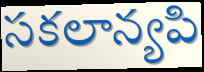
సకలాన్యపి